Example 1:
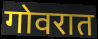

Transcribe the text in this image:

गोवरात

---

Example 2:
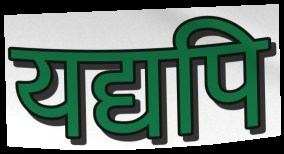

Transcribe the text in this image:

यद्यपि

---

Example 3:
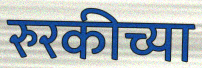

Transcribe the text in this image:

रुरकीच्या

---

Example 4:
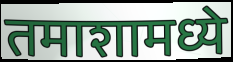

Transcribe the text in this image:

तमाशामध्ये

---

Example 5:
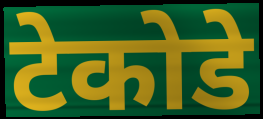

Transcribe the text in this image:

टेकोडे